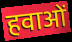
हवाओं